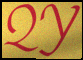
QY